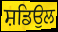
ਸ਼ਡਿਉਲ